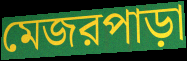
মেজরপাড়া